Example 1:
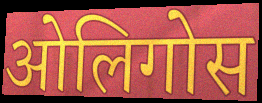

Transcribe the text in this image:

ओलिगोस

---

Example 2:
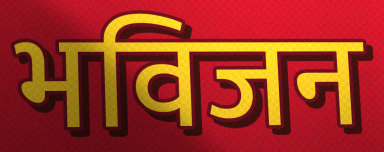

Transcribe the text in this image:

भविजन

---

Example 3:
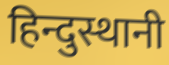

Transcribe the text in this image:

हिन्दुस्थानी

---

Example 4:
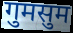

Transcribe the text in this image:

गुमसुम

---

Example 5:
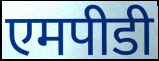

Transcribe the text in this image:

एमपीडी